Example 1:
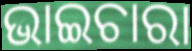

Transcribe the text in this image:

ଭାଇଚାରା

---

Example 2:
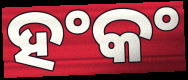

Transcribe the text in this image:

ହଂକଂ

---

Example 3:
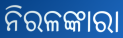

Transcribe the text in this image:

ନିରଳଙ୍କାରା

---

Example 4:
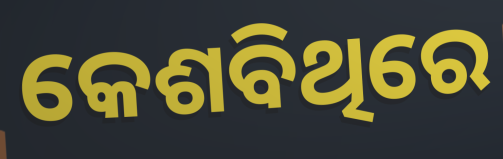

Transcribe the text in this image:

କେଶବିଥିରେ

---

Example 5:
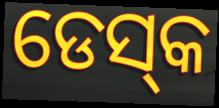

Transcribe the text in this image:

ଡେସ୍‌କ